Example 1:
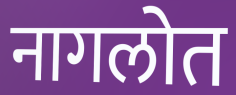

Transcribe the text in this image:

नागलोत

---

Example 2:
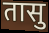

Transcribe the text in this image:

तासु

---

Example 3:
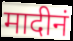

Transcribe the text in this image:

मादीनं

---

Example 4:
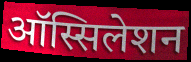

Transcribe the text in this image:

ऑस्सिलेशन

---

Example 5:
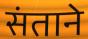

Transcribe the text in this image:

संताने